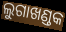
ଲୁଗାଖଣ୍ଡକ